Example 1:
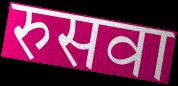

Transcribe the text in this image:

रुसवा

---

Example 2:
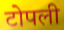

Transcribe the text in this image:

टोपली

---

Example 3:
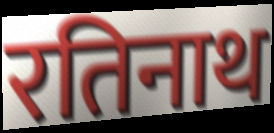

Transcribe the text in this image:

रतिनाथ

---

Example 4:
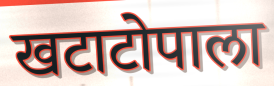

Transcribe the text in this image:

खटाटोपाला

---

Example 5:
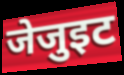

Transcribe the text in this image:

जेजुइट